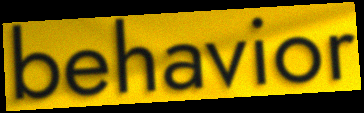
behavior